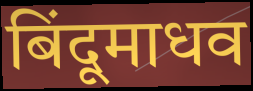
बिंदूमाधव